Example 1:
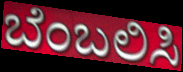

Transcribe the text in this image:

ಬೆಂಬಲಿಸಿ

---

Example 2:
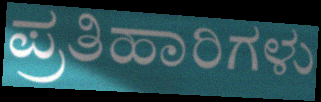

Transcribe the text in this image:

ಪ್ರತಿಹಾರಿಗಳು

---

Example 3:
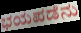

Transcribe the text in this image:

ಭಯಪಡೆನು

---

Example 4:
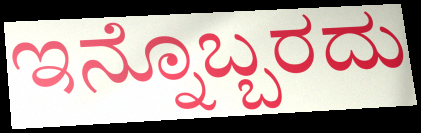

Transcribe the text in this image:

ಇನ್ನೊಬ್ಬರದು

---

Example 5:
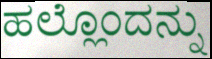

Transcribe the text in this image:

ಹಲ್ಲೊಂದನ್ನು